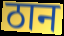
ठान